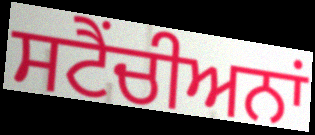
ਸਟੈਂਚੀਅਨਾਂ